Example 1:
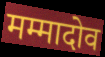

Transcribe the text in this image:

मम्मादोव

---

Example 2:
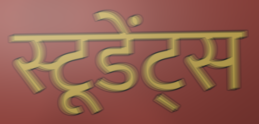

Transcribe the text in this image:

स्टूडेंट्स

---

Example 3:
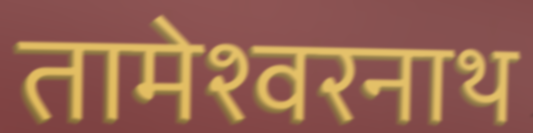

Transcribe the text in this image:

तामेश्वरनाथ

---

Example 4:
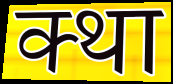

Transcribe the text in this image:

क्था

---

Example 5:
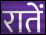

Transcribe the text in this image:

रातें